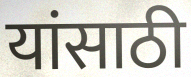
यांसाठी